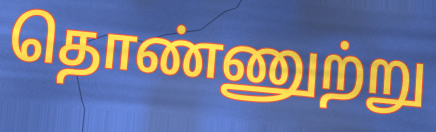
தொண்ணுற்று